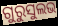
ଗୁରୁସୁଲଭ